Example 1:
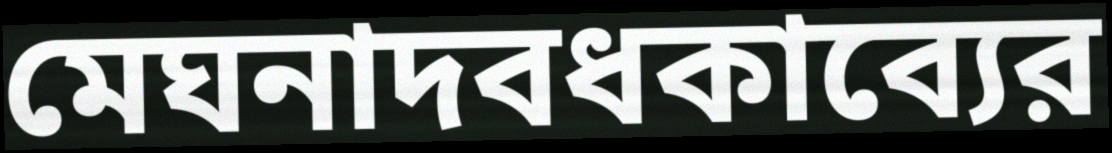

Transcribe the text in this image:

মেঘনাদবধকাব্যের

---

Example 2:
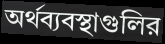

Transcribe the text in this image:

অর্থব্যবস্থাগুলির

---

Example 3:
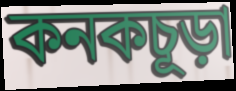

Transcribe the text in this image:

কনকচূড়া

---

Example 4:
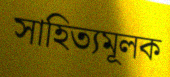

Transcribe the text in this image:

সাহিত্যমূলক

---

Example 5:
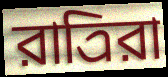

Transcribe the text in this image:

রাত্রিরা